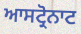
ਆਸਟ੍ਰੋਨਾਟ